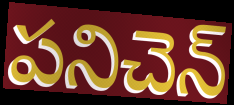
పనిచెన్